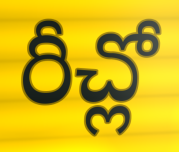
రీచ్లో